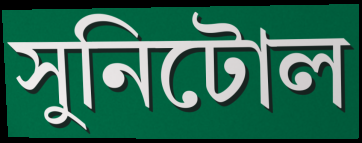
সুনিটোল